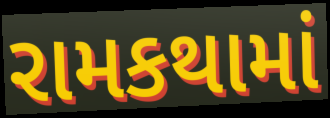
રામકથામાં